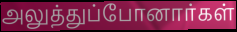
அலுத்துப்போனார்கள்